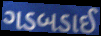
ગડબડાઈ